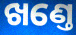
ଖଣ୍ତେ